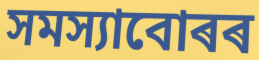
সমস্যাবোৰৰ